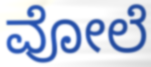
ವೋಲೆ